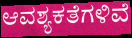
ಆವಶ್ಯಕತೆಗಳಿವೆ